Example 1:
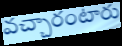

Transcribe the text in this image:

వచ్చారంటారు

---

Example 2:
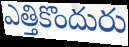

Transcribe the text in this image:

ఎత్తికొందురు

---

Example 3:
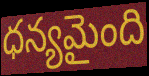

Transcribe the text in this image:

ధన్యమైంది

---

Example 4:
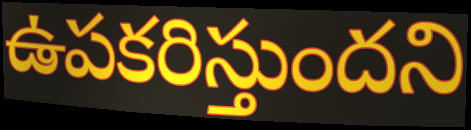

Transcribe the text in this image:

ఉపకరిస్తుందని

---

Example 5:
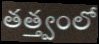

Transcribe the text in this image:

తత్త్వంలో